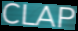
CLAP